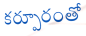
కర్పూరంతో